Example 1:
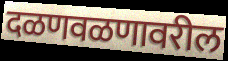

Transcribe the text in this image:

दळणवळणावरील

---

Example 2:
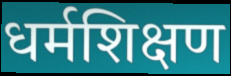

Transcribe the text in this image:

धर्मशिक्षण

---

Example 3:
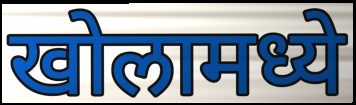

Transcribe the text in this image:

खोलामध्ये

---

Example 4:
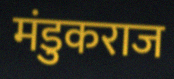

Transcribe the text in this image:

मंडुकराज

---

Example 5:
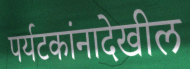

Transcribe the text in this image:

पर्यटकांनादेखील